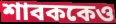
শাবককেও